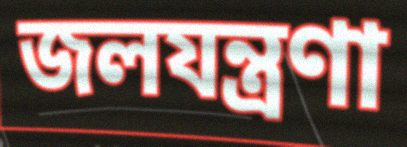
জলযন্ত্রণা